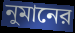
নুমানের